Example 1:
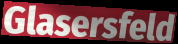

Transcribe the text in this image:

Glasersfeld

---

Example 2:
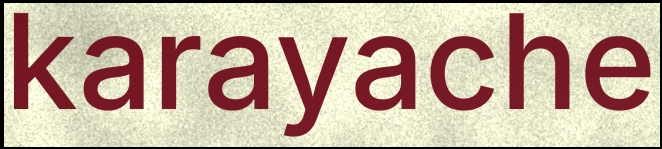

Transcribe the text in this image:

karayache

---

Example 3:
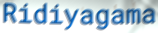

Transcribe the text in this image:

Ridiyagama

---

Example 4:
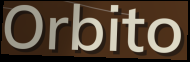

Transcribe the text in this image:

Orbito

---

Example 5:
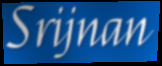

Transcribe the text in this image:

Srijnan